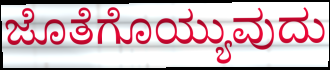
ಜೊತೆಗೊಯ್ಯುವುದು